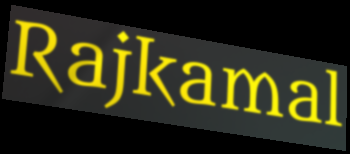
Rajkamal